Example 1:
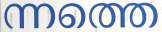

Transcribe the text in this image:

ന്നത്തെ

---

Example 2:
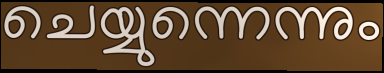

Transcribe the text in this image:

ചെയ്യുന്നെന്നും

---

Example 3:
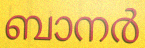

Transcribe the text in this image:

ബാനർ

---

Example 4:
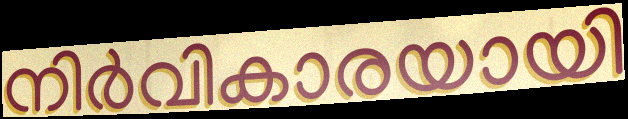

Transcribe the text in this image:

നിർവികാരയായി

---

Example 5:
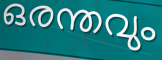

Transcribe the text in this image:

ഒരന്തവും